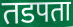
तडपता